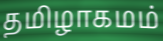
தமிழாகமம்